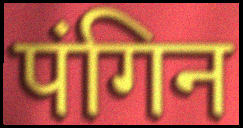
पंगिन